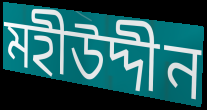
মহীউদ্দীন